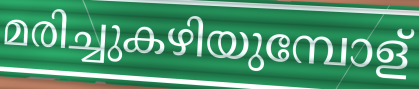
മരിച്ചുകഴിയുമ്പോള്